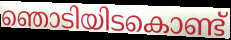
ഞൊടിയിടകൊണ്ട്